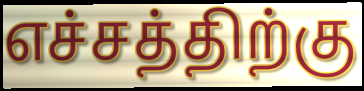
எச்சத்திற்கு